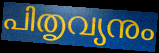
പിതൃവ്യനും